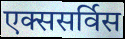
एक्ससर्विस